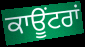
ਕਾਊਂਟਰਾਂ